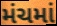
મંચમાં